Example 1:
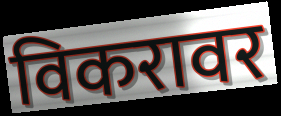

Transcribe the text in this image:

विकरावर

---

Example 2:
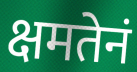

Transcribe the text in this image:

क्षमतेनं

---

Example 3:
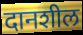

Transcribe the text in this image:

दानशील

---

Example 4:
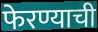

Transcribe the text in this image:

फेरण्याची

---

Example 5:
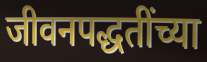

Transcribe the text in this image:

जीवनपद्धतींच्या